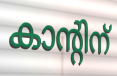
കാന്റിന്